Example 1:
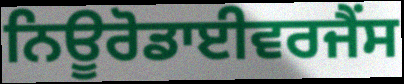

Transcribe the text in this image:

ਨਿਊਰੋਡਾਈਵਰਜੈਂਸ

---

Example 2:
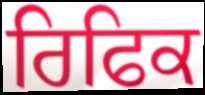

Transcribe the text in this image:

ਰਿਫਿਕ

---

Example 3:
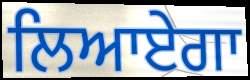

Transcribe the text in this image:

ਲਿਆਏਗਾ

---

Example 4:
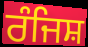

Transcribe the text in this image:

ਰੰਜਿਸ਼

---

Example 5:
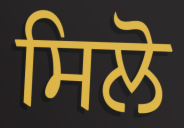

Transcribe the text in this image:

ਸਿਲੋ